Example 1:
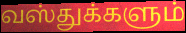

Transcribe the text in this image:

வஸ்துக்களும்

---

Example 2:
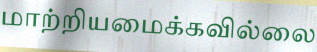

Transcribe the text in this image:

மாற்றியமைக்கவில்லை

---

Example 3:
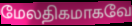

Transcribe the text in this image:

மேலதிகமாகவே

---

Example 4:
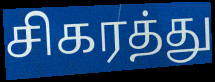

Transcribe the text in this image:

சிகரத்து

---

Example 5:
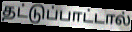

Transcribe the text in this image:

தட்டுப்பாட்டால்